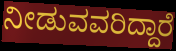
ನೀಡುವವರಿದ್ದಾರೆ